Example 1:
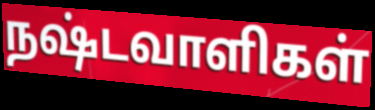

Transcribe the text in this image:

நஷ்டவாளிகள்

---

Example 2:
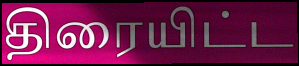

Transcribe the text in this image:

திரையிட்ட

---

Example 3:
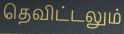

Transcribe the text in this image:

தெவிட்டலும்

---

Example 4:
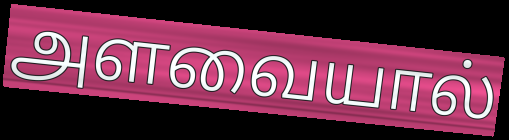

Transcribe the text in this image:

அளவையால்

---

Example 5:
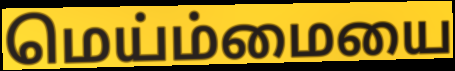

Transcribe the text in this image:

மெய்ம்மையை